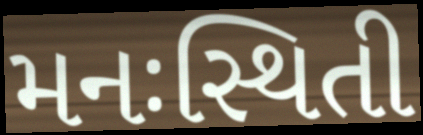
મનઃસ્થિતી